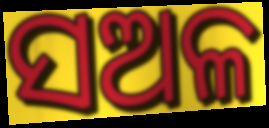
ସଅଳ